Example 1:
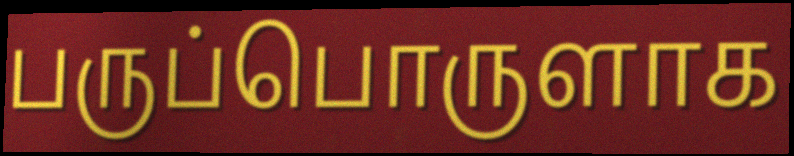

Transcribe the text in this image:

பருப்பொருளாக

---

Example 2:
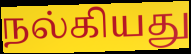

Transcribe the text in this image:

நல்கியது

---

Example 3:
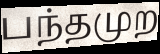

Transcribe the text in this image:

பந்தமுற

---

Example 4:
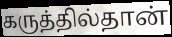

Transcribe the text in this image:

கருத்தில்தான்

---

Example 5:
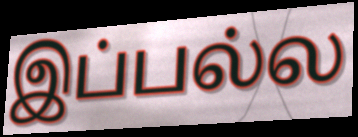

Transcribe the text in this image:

இப்பல்ல